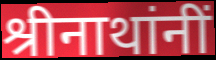
श्रीनाथांनीं